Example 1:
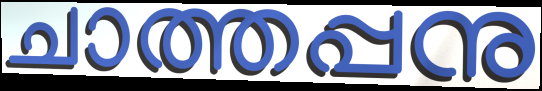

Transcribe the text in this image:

ചാത്തപ്പനു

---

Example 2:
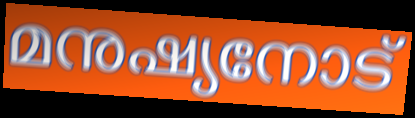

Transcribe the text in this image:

മനുഷ്യനോട്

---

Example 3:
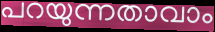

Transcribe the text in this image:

പറയുന്നതാവാം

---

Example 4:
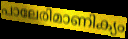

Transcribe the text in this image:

പാലേരിമാണിക്യം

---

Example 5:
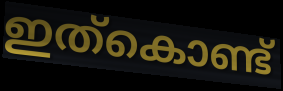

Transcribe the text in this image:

ഇത്കൊണ്ട്